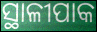
ସ୍ଥାଳୀପାକ